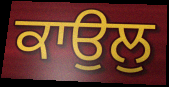
ਕਾਉਲੁ